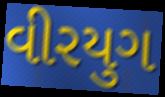
વીરયુગ